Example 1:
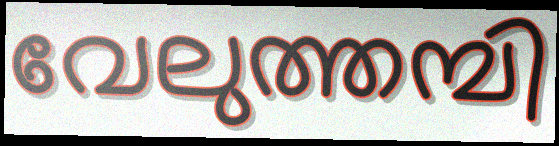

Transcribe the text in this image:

വേലുത്തമ്പി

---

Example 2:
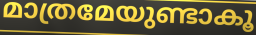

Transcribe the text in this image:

മാത്രമേയുണ്ടാകൂ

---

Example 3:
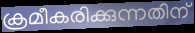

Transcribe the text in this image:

ക്രമീകരിക്കുന്നതിന്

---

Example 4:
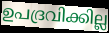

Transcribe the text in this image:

ഉപദ്രവിക്കില്ല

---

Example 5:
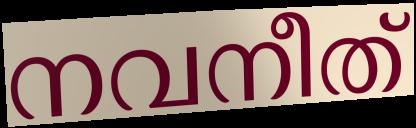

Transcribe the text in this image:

നവനീത്